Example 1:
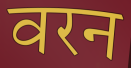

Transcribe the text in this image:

वरन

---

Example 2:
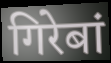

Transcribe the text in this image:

गिरेबां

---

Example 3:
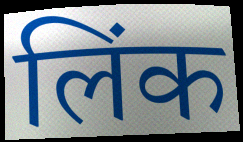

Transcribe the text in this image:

लिंक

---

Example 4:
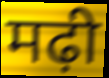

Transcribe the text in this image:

मढ़ी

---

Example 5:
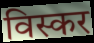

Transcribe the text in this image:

विस्कर